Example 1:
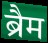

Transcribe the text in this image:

ब्रैम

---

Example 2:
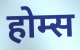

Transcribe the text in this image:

होम्स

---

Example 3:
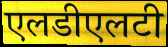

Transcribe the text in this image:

एलडीएलटी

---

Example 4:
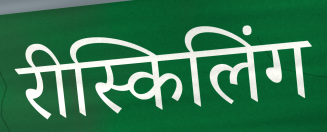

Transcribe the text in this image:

रीस्किलिंग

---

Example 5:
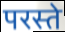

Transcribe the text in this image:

परस्ते